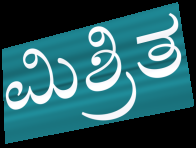
ಮಿಶ್ರಿತ